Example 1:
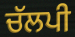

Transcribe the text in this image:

ਚੱਲਪੀ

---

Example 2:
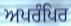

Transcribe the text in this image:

ਅਪਰੰਪਿਰ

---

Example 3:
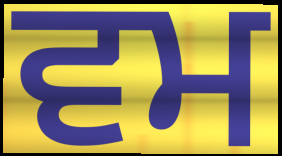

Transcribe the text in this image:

ਵਮ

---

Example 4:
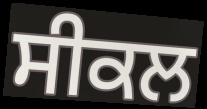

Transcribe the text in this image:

ਸੀਕਲ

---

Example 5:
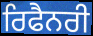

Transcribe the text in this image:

ਰਿਫੈਨਰੀ